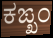
ಕಙ್ಖಂ